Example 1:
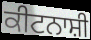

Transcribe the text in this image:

ਕੀਟਨਾਸ਼ੀ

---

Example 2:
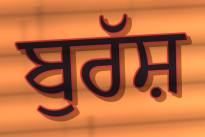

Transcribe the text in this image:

ਬੁਰੱਸ਼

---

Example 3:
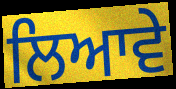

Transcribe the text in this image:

ਲਿਆਵੇ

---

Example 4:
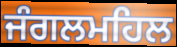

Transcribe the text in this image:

ਜੰਗਲਮਹਿਲ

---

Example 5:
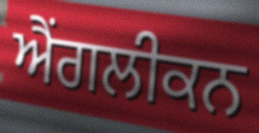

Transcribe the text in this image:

ਐਂਗਲੀਕਨ